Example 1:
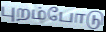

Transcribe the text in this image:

புறம்போடு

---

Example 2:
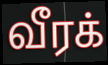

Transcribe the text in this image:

வீரக்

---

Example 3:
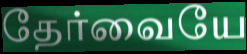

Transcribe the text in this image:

தேர்வையே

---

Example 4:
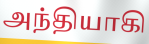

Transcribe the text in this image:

அந்தியாகி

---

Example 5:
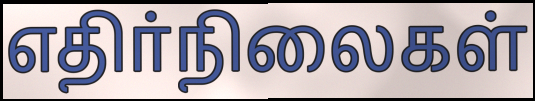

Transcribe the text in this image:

எதிர்நிலைகள்